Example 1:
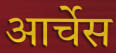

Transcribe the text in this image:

आर्चेस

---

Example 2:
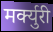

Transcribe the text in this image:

मर्क्युरी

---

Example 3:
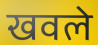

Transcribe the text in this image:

खवले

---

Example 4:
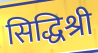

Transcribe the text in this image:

सिद्धिश्री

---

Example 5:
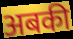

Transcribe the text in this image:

अबकी